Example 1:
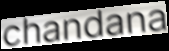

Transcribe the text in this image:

chandana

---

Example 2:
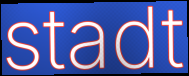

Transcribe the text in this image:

stadt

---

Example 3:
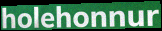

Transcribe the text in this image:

holehonnur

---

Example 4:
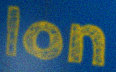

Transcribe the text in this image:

Ion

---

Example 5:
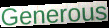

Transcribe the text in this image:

Generous